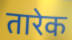
तारेक